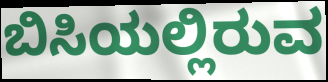
ಬಿಸಿಯಲ್ಲಿರುವ